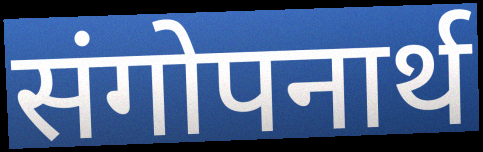
संगोपनार्थ